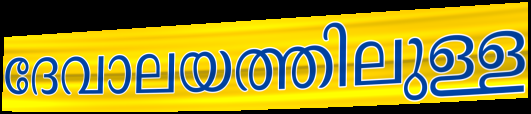
ദേവാലയത്തിലുള്ള